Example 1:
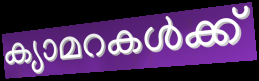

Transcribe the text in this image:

ക്യാമറകൾക്ക്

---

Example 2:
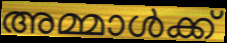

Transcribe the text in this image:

അമ്മാൾക്ക്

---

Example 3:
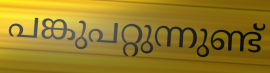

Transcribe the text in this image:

പങ്കുപറ്റുന്നുണ്ട്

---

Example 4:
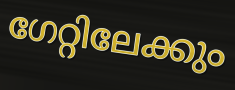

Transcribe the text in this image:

ഗേറ്റിലേക്കും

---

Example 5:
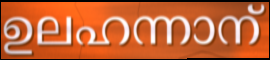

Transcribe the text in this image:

ഉലഹന്നാന്